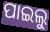
ପାଇଲୁ